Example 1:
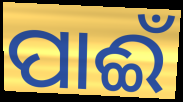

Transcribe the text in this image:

ପାଈଁ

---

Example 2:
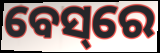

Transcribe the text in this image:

ବେସ୍‌ରେ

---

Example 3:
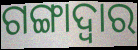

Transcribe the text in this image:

ଗଙ୍ଗାଦ୍ୱାର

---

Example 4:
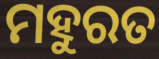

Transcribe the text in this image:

ମହୁରତ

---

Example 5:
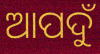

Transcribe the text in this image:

ଆପଦୁଁ